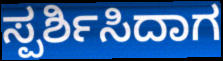
ಸ್ಪರ್ಶಿಸಿದಾಗ